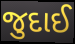
જુદાઈ